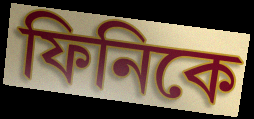
ফিনিকে